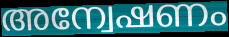
അന്വേഷണം